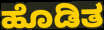
ಹೊಡಿತ